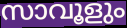
സാവൂളും